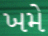
ખમે